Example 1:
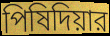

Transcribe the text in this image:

পিষিদিয়ার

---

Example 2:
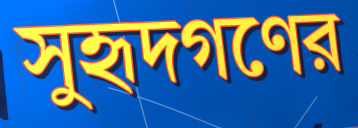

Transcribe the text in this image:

সুহৃদগণের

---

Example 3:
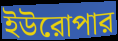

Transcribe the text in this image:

ইউরোপার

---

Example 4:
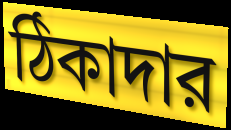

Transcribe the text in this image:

ঠিকাদার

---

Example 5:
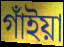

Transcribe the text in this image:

গাঁইয়া